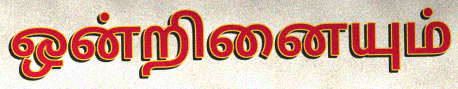
ஒன்றினையும்